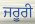
ਜਰੂਰੀ